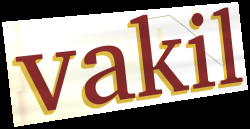
vakil